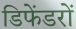
डिफेंडरों